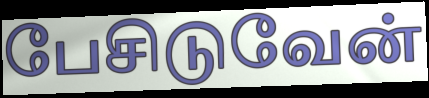
பேசிடுவேன்